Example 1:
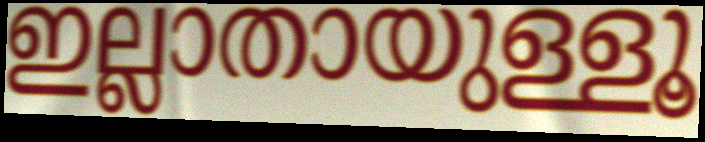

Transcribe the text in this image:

ഇല്ലാതായുള്ളൂ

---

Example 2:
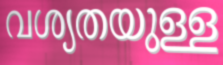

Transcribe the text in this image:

വശ്യതയുള്ള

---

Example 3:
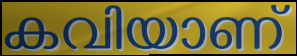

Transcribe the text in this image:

കവിയാണ്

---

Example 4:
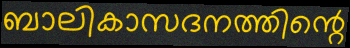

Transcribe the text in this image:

ബാലികാസദനത്തിന്റെ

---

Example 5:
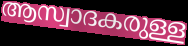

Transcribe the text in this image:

ആസ്വാദകരുള്ള